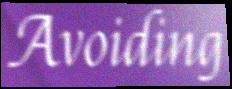
Avoiding